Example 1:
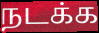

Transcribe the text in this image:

நடக்க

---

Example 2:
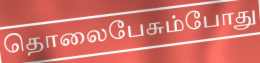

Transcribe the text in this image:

தொலைபேசும்போது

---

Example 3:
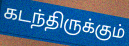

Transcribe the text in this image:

கடந்திருக்கும்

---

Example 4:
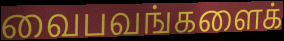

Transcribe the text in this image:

வைபவங்களைக்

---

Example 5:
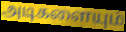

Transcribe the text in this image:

அடிகளையும்